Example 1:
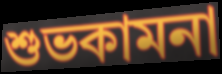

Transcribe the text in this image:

শুভকামনা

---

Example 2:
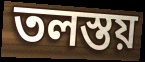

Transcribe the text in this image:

তলস্তয়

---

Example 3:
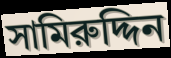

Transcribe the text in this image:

সামিরুদ্দিন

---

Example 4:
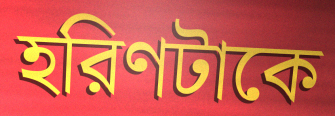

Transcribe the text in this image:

হরিণটাকে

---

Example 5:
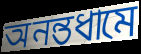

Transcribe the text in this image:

অনন্তধামে